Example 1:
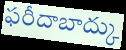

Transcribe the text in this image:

ఫరీదాబాద్కు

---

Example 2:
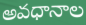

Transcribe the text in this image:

అవధానాల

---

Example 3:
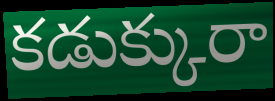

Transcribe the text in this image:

కడుక్కురా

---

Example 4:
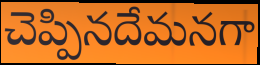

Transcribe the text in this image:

చెప్పినదేమనగా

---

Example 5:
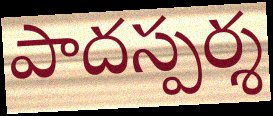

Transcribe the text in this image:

పాదస్పర్శ